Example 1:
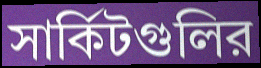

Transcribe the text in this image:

সার্কিটগুলির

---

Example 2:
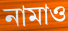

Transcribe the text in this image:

নামাও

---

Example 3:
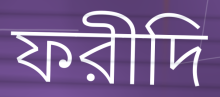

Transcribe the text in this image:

ফরীদি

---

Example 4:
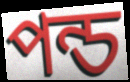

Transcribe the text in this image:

পন্ড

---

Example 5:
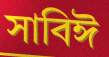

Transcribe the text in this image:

সাবিঈ